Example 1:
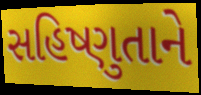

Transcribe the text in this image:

સહિષ્ણુતાને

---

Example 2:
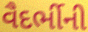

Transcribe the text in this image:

વૈદર્ભીની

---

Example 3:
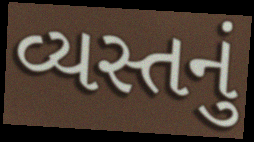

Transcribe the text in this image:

વ્યસ્તનું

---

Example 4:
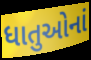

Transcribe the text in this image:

ધાતુઓનાં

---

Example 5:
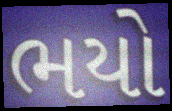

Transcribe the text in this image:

ભયો